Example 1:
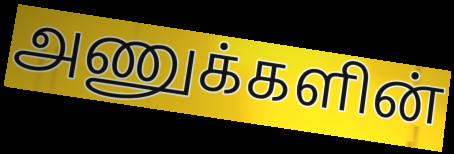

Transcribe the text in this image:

அணுக்களின்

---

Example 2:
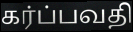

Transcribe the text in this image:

கர்ப்பவதி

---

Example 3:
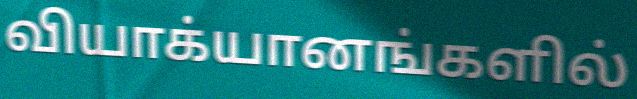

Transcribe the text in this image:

வியாக்யானங்களில்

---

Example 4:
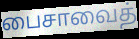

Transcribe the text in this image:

பைசாவைத்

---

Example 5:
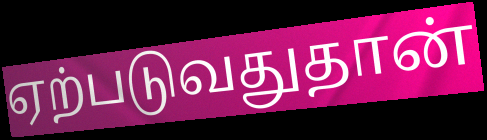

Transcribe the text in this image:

ஏற்படுவதுதான்